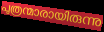
പുത്രന്മാരായിരുന്നു